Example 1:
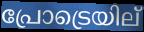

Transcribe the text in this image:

പ്രോട്രെയില്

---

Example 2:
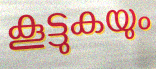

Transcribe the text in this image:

കൂട്ടുകയും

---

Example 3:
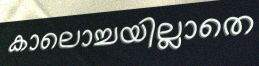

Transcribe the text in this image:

കാലൊച്ചയില്ലാതെ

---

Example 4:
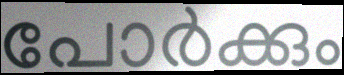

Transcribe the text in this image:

പോർക്കും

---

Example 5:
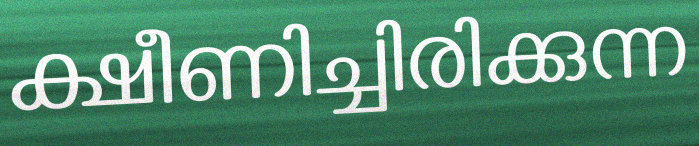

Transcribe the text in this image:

ക്ഷീണിച്ചിരിക്കുന്ന